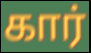
கார்